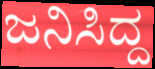
ಜನಿಸಿದ್ದ